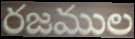
రజముల